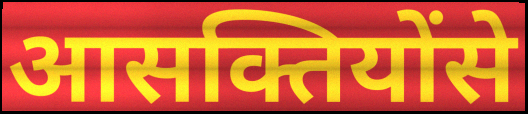
आसक्तियोंसे